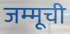
जम्मूची